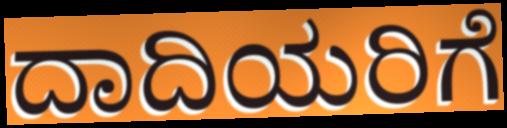
ದಾದಿಯರಿಗೆ